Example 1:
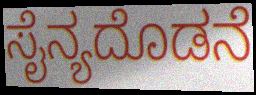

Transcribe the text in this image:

ಸೈನ್ಯದೊಡನೆ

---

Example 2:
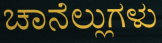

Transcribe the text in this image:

ಚಾನೆಲ್ಲುಗಳು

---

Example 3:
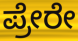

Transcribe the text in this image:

ಪ್ರೇರೇ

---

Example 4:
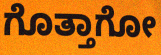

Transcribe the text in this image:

ಗೊತ್ತಾಗೋ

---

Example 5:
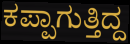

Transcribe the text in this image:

ಕಪ್ಪಾಗುತ್ತಿದ್ದ